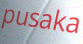
pusaka